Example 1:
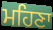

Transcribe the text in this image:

ਮਹਿਣਾ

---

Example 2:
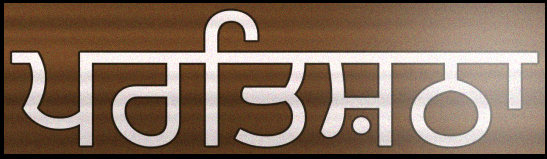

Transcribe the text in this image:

ਪਰਤਿਸ਼ਠਾ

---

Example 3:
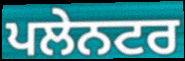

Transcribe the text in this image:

ਪਲੇਨਟਰ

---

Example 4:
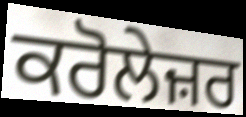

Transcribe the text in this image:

ਕਰੋਲੇਜ਼ਰ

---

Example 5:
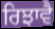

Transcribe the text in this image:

ਰਿਝਾਵੈ